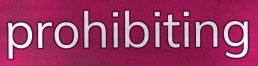
prohibiting